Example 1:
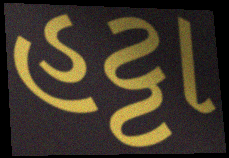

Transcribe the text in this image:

હટ્ટા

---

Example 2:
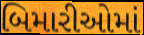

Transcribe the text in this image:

બિમારીઓમાં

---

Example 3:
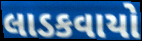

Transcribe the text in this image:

લાડકવાયો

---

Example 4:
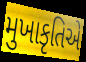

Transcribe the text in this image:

મુખાકૃતિએ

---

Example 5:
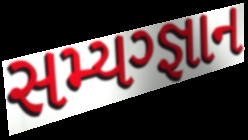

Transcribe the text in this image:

સમ્યગ્જ્ઞાન